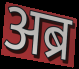
अब्र